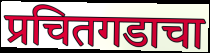
प्रचितगडाचा